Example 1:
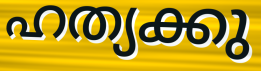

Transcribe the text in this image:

ഹത്യക്കു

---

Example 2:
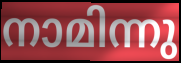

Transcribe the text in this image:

നാമിന്നു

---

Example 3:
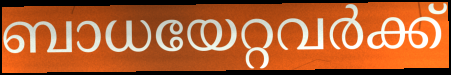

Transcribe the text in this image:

ബാധയേറ്റവർക്ക്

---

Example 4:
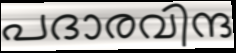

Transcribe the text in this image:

പദാരവിന്ദ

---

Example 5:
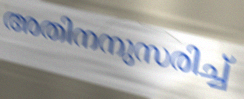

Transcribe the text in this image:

അതിനനുസരിച്ച്